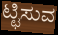
ಟ್ಟಿಸುವ